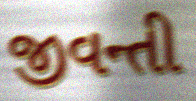
જીવન્તી